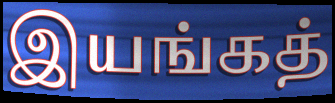
இயங்கத்